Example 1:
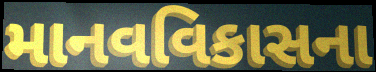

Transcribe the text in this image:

માનવવિકાસના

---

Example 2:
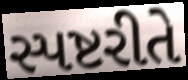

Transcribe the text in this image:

સ્પષ્ટરીતે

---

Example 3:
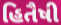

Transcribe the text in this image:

હિતૈષી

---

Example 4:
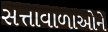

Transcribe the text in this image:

સત્તાવાળાઓને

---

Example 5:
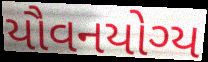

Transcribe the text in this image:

યૌવનયોગ્ય